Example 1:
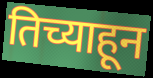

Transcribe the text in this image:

तिच्याहून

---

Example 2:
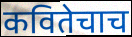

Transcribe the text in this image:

कवितेचाच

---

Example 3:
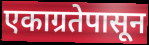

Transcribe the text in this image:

एकाग्रतेपासून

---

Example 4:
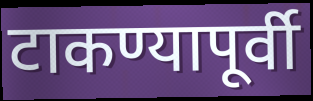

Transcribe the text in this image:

टाकण्यापूर्वी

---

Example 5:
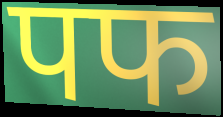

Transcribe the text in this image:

पफ